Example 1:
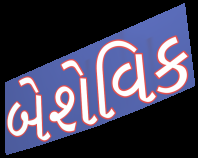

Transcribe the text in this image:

બેશેવિક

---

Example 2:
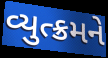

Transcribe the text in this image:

વ્યુત્ક્રમને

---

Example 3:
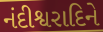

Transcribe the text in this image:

નંદીશ્વરાદિને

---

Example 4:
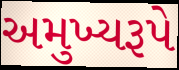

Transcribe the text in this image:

અમુખ્યરૂપે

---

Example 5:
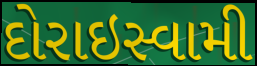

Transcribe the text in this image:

દોરાઇસ્વામી